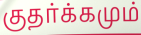
குதர்க்கமும்